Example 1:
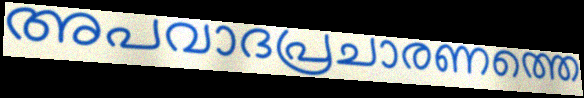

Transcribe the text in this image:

അപവാദപ്രചാരണത്തെ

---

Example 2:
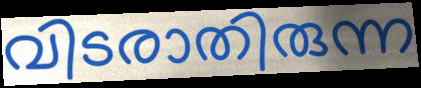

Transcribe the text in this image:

വിടരാതിരുന്ന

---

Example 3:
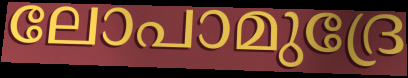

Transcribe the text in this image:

ലോപാമുദ്രേ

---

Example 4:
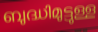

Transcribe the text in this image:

ബുദ്ധിമുട്ടുള്ള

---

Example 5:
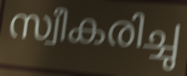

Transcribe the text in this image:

സ്വീകരിച്ചു